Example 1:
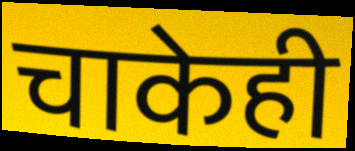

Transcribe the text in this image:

चाकेही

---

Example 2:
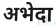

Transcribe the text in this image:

अभेदा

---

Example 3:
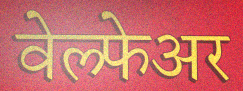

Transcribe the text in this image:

वेल्फेअर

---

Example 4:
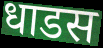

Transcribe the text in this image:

धाडस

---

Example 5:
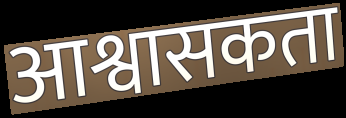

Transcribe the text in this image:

आश्वासकता